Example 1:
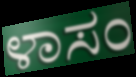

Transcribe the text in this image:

ಳಾಸಂ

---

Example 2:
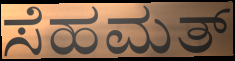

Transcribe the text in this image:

ಸೆಹಮತ್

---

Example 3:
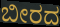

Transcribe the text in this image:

ಬೀರದ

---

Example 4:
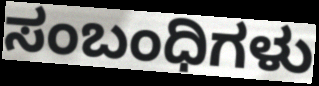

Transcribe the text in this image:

ಸಂಬಂಧಿಗಳು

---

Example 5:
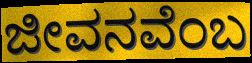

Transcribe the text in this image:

ಜೀವನವೆಂಬ